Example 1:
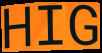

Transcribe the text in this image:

HIG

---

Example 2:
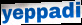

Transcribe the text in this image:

yeppadi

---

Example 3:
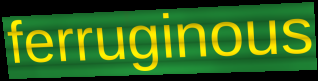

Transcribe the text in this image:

ferruginous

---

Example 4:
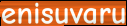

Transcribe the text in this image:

enisuvaru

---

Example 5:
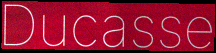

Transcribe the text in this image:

Ducasse